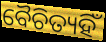
ବୈଚିତ୍ୟହିଁ